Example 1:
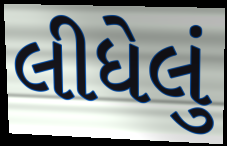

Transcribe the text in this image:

લીધેલું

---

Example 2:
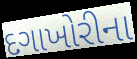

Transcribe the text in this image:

દગાખોરીના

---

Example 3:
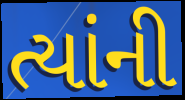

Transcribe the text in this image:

ત્યાંની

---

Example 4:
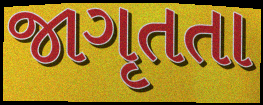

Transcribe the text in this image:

જાગૃતતા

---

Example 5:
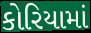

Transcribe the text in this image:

કોરિયામાં